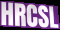
HRCSL